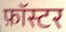
फ़ॉस्टर